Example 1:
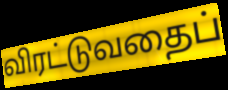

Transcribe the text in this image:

விரட்டுவதைப்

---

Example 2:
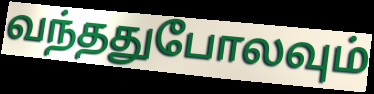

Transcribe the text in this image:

வந்ததுபோலவும்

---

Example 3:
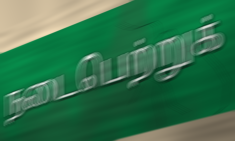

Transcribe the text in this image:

நடைபெற்றுக்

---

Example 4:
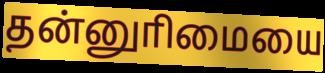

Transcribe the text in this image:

தன்னுரிமையை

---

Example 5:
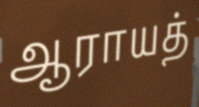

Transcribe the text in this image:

ஆராயத்